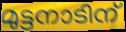
മുട്ടനാടിന്